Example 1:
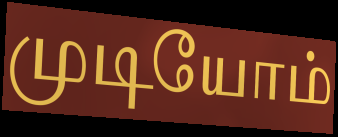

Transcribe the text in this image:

முடியோம்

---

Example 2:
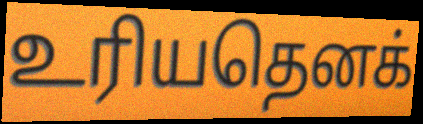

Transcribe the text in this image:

உரியதெனக்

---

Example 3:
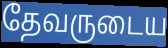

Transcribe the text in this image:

தேவருடைய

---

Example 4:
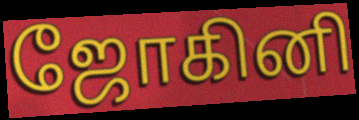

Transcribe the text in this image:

ஜோகினி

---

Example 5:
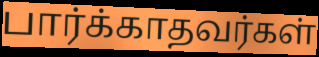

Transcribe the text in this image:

பார்க்காதவர்கள்